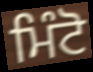
ਮਿੰਟੋ